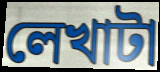
লেখাটা